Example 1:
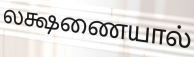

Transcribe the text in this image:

லக்ஷணையால்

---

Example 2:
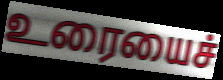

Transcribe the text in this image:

உரையைச்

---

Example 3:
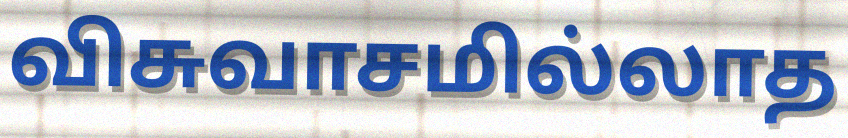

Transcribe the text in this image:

விசுவாசமில்லாத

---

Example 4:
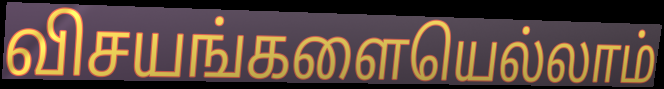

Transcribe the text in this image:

விசயங்களையெல்லாம்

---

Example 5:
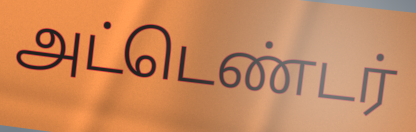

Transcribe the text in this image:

அட்டெண்டர்